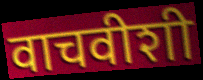
वाचवीशी